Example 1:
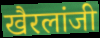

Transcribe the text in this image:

खैरलांजी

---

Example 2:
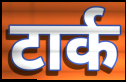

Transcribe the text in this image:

टार्क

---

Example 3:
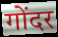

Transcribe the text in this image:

गोंदर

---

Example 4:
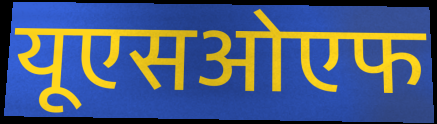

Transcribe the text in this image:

यूएसओएफ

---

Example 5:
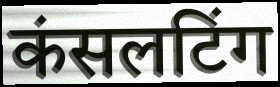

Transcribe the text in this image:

कंसलटिंग